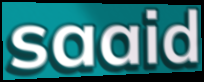
saaid